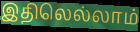
இதிலெல்லாம்